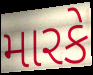
મારકે